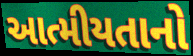
આત્મીયતાનો